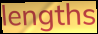
lengths